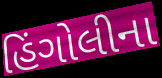
હિંગોલીના